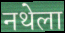
नथेला